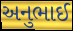
અનુભાઈ